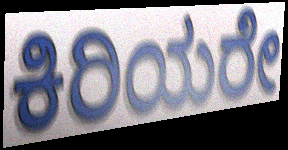
ಕಿರಿಯರೇ